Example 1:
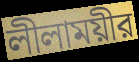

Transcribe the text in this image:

লীলাময়ীর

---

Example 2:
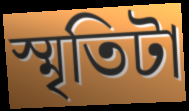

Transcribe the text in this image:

স্মৃতিটা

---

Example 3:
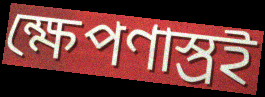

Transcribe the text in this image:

ক্ষেপণাস্ত্রই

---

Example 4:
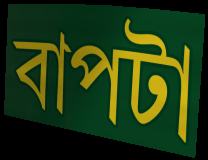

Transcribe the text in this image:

বাপটা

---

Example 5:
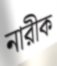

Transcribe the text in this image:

নারীক